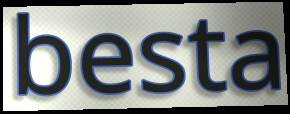
besta